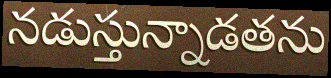
నడుస్తున్నాడతను